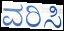
ವರಿಸಿ